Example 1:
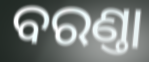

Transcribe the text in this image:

ବରଣ୍ତା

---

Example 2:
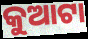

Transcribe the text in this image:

କୁଆଟା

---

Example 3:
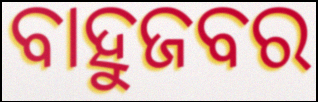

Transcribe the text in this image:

ବାହୁଜବର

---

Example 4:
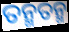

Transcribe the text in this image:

ତନ୍ମତନ୍ମ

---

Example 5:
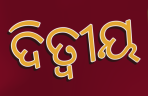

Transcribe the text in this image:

ଦିତ୍ୱୀୟ